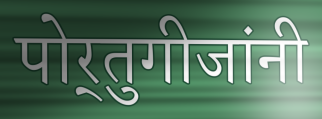
पोर्तुगीजांनी